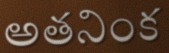
అతనింక